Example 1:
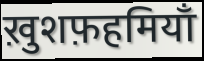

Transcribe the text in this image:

ख़ुशफ़हमियाँ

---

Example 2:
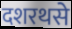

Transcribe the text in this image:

दशरथसे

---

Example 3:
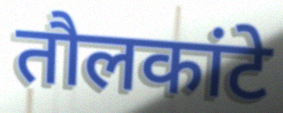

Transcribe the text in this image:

तौलकांटे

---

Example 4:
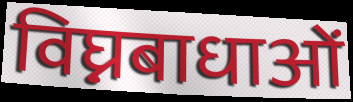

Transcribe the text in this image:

विघ्नबाधाओं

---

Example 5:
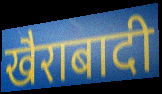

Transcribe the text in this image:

खैराबादी